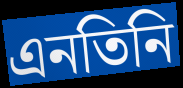
এনতিনি